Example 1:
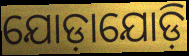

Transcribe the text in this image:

ଯୋଡ଼ାଯୋଡ଼ି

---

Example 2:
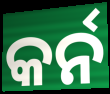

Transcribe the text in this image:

କର୍ନ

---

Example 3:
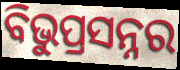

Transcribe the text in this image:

ବିଭୁପ୍ରସନ୍ନର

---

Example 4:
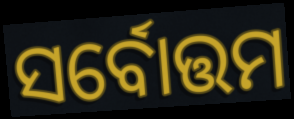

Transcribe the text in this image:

ସର୍ବୋତ୍ତମ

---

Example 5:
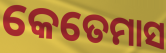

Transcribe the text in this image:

କେତେମାସ